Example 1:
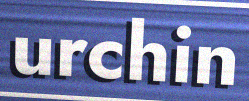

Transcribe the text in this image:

urchin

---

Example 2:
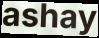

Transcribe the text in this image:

ashay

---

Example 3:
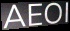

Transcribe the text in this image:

AEOI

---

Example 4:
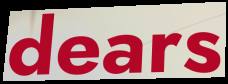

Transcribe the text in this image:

dears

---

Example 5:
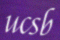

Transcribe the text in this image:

ucsb